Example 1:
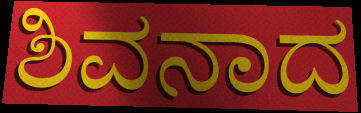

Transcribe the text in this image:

ಶಿವನಾದ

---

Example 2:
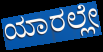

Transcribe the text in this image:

ಯಾರಲ್ಲೇ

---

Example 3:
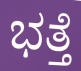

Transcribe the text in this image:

ಭತ್ತೆ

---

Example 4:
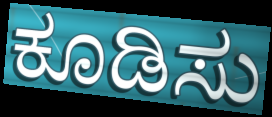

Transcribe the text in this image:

ಕೂಡಿಸು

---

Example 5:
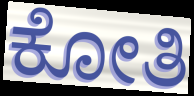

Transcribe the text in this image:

ಕೋತಿ